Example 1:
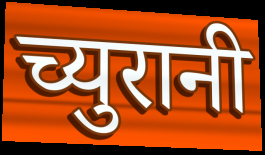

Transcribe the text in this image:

च्युरानी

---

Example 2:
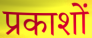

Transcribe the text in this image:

प्रकाशों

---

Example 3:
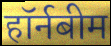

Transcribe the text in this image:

हॉर्नबीम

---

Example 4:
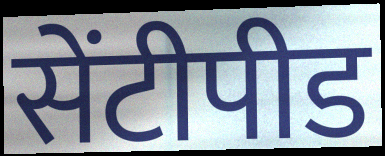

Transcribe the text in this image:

सेंटीपीड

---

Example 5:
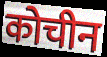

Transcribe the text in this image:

कोचीन